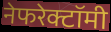
नेफरेक्टॉमी